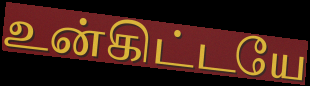
உன்கிட்டயே